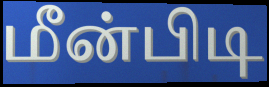
மீன்பிடி